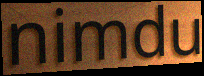
nimdu